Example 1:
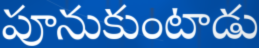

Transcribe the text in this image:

పూనుకుంటాడు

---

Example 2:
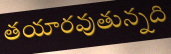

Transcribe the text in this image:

తయారవుతున్నది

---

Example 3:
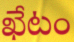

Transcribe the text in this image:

ఖేటం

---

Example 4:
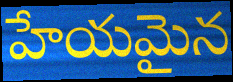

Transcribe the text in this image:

హేయమైన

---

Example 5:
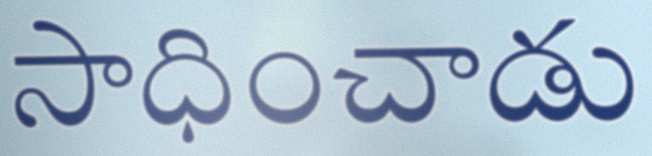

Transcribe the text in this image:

సాధించాడు